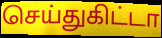
செய்துகிட்டா